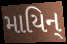
માયિન્